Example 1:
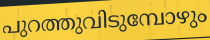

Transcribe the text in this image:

പുറത്തുവിടുമ്പോഴും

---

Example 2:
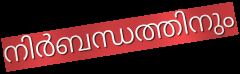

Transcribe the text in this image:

നിർബന്ധത്തിനും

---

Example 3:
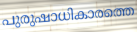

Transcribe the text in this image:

പുരുഷാധികാരത്തെ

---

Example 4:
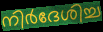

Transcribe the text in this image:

നിർദേശിച്ച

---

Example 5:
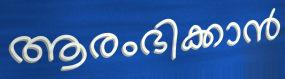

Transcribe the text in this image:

ആരംഭിക്കാൻ